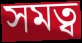
সমত্ব